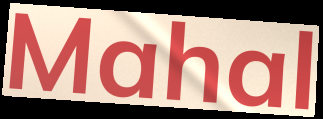
Mahal